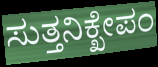
ಸುತ್ತನಿಕ್ಖೇಪಂ